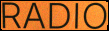
RADIO